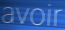
avoir